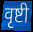
वृष्टी